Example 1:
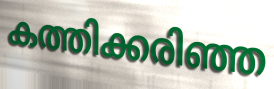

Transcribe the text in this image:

കത്തിക്കരിഞ്ഞ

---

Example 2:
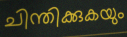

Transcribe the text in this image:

ചിന്തിക്കുകയും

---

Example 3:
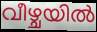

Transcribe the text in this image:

വീഴ്ചയിൽ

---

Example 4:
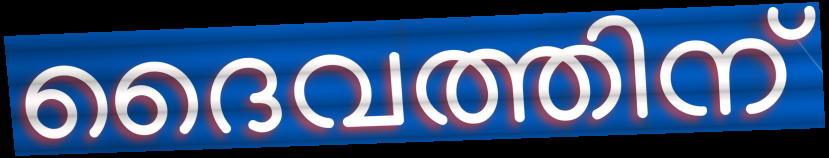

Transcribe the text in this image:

ദൈവത്തിന്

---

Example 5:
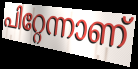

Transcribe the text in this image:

പിറ്റേന്നാണ്